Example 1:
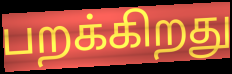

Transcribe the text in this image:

பறக்கிறது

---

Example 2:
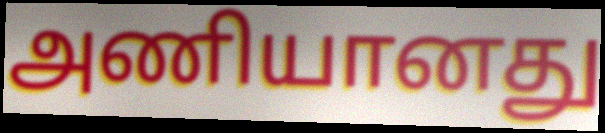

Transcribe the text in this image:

அணியானது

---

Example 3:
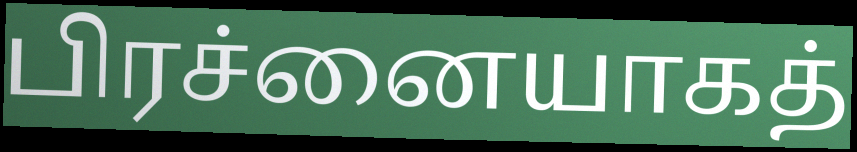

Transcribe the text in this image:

பிரச்னையாகத்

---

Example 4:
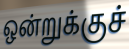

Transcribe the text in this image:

ஒன்றுக்குச்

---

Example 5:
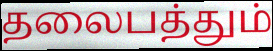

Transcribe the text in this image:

தலைபத்தும்